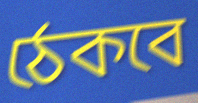
ঠেকবে